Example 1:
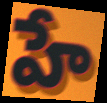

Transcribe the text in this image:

హే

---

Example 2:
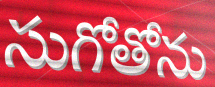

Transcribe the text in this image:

సుగోతోను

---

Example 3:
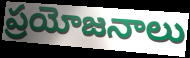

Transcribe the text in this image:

ప్రయోజనాలు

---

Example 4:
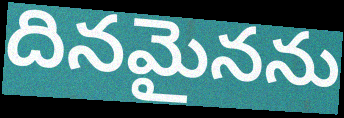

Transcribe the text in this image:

దినమైనను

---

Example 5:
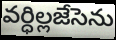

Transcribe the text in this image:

వర్ధిల్లజేసెను